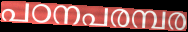
പഠനപരമ്പര